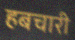
हबचारी